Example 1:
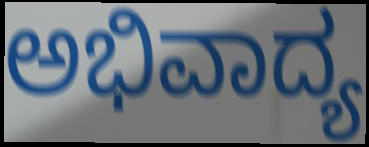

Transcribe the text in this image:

ಅಭಿವಾದ್ಯ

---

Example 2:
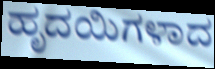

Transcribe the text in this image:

ಹೃದಯಿಗಳಾದ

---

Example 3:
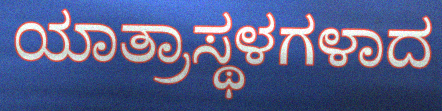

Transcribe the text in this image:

ಯಾತ್ರಾಸ್ಥಳಗಳಾದ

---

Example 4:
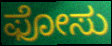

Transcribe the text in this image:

ಫೋಸು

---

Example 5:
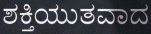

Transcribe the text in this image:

ಶಕ್ತಿಯುತವಾದ